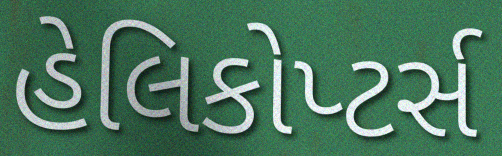
હેલિકોપ્ટર્સ